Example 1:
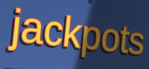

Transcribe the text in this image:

jackpots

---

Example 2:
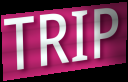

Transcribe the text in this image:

TRIP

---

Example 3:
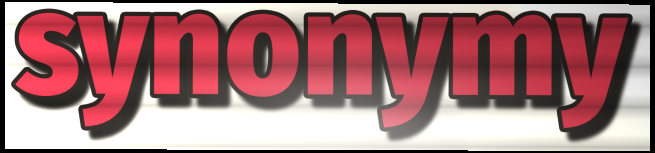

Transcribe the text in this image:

synonymy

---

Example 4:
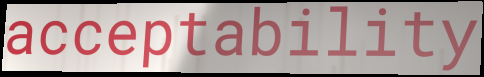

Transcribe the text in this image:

acceptability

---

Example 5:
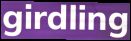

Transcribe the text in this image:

girdling